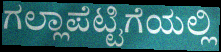
ಗಲ್ಲಾಪೆಟ್ಟಿಗೆಯಲ್ಲಿ